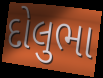
દોલુભા